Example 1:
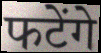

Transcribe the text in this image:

फटेंगे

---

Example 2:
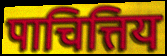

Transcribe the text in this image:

पाचित्तिय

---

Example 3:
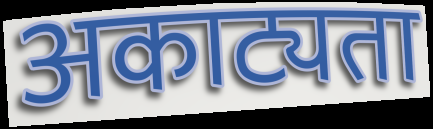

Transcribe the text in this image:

अकाट्यता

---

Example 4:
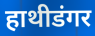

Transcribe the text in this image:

हाथीडंगर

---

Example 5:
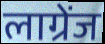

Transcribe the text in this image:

लाग्रेंज